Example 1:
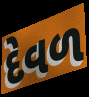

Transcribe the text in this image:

દેવળ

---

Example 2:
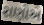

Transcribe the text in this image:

રાણોએ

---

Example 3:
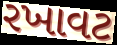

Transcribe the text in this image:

રખાવટ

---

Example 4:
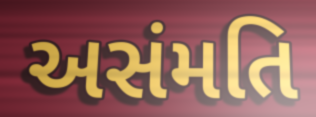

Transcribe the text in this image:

અસંમતિ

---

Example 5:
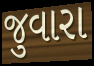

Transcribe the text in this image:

જુવારા